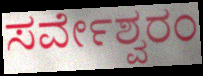
ಸರ್ವೇಶ್ವರಂ